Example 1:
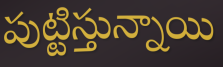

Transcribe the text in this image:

పుట్టిస్తున్నాయి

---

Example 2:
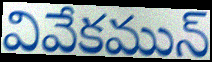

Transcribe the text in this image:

వివేకమున్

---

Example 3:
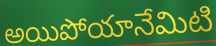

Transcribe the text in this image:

అయిపోయానేమిటి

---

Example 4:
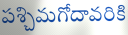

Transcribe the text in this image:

పశ్చిమగోదావరికి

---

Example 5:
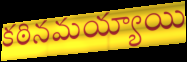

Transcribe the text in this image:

కఠినమయ్యాయి